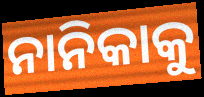
ନାନିକାକୁ